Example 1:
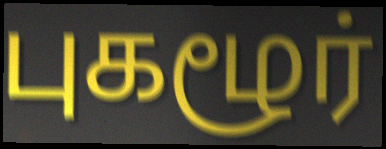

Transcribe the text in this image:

புகழூர்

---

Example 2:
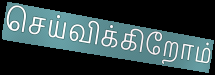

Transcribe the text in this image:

செய்விக்கிறோம்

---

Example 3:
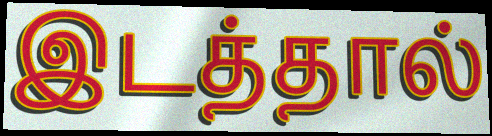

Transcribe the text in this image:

இடத்தால்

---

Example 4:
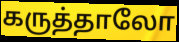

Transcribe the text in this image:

கருத்தாலோ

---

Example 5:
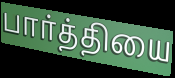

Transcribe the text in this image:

பார்த்தியை